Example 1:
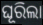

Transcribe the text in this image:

ଘୂରିଲା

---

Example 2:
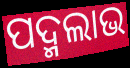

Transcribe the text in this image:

ପଦ୍ମଲାଭ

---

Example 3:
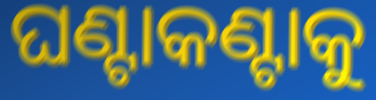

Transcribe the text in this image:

ଘଣ୍ଟାକଣ୍ଟାକୁ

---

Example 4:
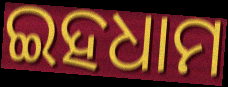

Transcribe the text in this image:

ଇହଧାମ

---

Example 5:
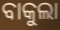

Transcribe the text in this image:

ବାକୁଲା